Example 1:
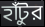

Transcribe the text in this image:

হাঁটুর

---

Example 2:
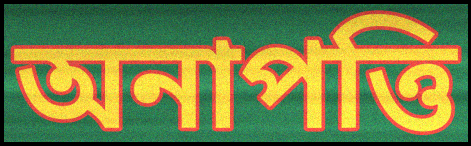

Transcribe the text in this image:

অনাপত্তি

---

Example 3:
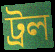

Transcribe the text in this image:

ট্রল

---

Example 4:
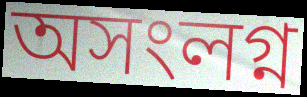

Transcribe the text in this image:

অসংলগ্ন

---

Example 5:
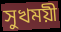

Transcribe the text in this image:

সুখময়ী